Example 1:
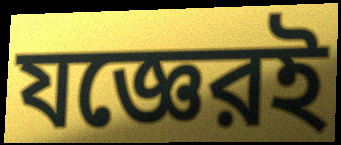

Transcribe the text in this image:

যজ্ঞেরই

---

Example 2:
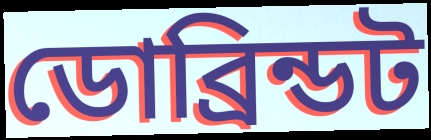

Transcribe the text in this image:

ডোব্রিন্ডট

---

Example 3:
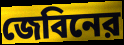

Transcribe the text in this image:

জেবিনের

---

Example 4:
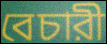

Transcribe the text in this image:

বেচারী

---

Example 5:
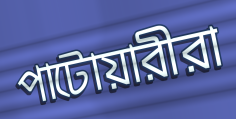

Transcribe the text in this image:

পাটোয়ারীরা